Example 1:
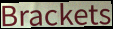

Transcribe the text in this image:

Brackets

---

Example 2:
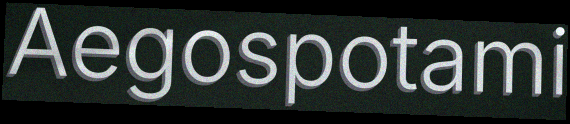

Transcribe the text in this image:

Aegospotami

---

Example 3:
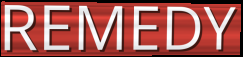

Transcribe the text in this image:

REMEDY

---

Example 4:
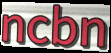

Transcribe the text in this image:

ncbn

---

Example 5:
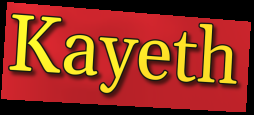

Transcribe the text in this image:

Kayeth